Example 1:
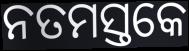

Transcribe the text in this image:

ନତମସ୍ତକେ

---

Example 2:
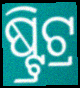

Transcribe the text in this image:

ଷ୍ଟ୍ରିଟ୍ର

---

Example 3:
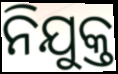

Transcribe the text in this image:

ନିଯୁକ୍ତ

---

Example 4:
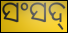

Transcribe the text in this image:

ସଂସଦ୍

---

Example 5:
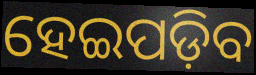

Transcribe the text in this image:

ହେଇପଡ଼ିବ